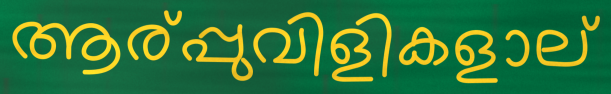
ആര്പ്പുവിളികളാല്